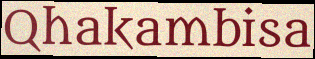
Qhakambisa